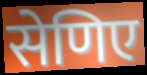
सेणिए